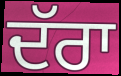
ਦੱਰਾ